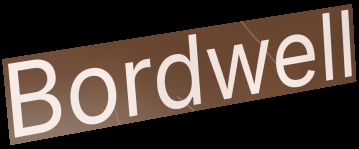
Bordwell